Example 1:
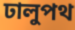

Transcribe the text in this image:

ঢালুপথ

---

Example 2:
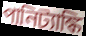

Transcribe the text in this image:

পানিট্যাঙ্কি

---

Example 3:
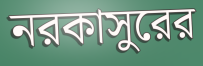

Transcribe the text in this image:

নরকাসুরের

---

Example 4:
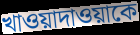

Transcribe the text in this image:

খাওয়াদাওয়াকে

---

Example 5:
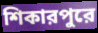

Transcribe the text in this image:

শিকারপুরে